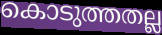
കൊടുത്തതല്ല